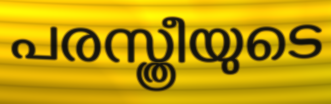
പരസ്ത്രീയുടെ